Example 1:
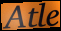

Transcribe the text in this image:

Atle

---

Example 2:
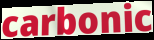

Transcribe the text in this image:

carbonic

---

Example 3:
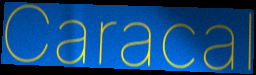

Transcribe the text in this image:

Caracal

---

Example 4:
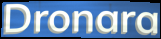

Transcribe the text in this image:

Dronara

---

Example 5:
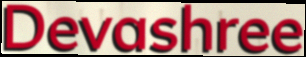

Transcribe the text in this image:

Devashree